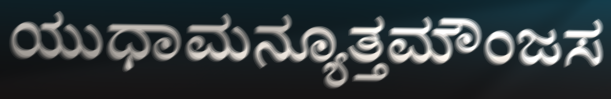
ಯುಧಾಮನ್ಯೂತ್ತಮೌಂಜಸ